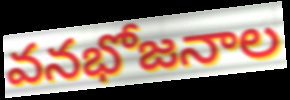
వనభోజనాల